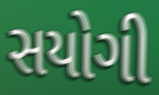
સયોગી